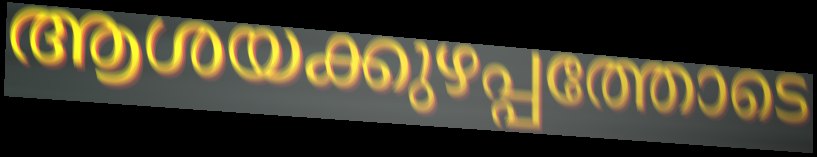
ആശയക്കുഴപ്പത്തോടെ